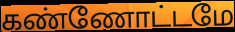
கண்ணோட்டமே